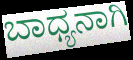
ಬಾಧ್ಯನಾಗಿ